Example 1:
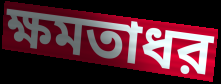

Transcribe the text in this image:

ক্ষমতাধর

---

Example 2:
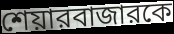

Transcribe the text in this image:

শেয়ারবাজারকে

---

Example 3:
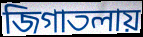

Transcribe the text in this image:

জিগাতলায়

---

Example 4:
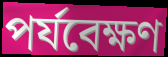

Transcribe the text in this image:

পর্যবেক্ষণ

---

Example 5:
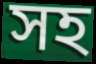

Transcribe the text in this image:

সহ